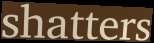
shatters